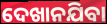
ଦେଖାନଯିବା